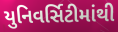
યુનિવર્સિટીમાંથી